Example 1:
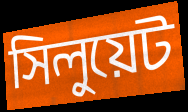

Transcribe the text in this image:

সিলুয়েট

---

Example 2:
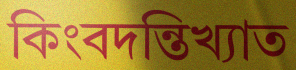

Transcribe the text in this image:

কিংবদন্তিখ্যাত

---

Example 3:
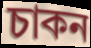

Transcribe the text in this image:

চাকন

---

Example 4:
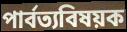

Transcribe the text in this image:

পার্বত্যবিষয়ক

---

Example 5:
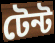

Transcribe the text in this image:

টেন্ট